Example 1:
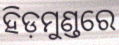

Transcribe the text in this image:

ହିଡ଼ମୁଣ୍ଡରେ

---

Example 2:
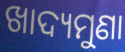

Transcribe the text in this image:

ଖାଦ୍ୟମୁଣା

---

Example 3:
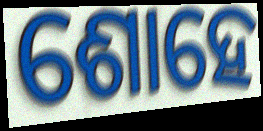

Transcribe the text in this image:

ଶୋହେ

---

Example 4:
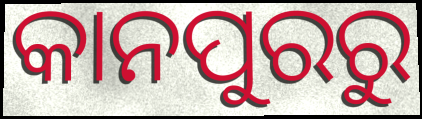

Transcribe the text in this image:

କାନପୁରରୁ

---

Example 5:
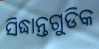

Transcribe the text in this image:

ସିଦ୍ଧାନ୍ତଗୁଡିକ